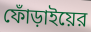
ফোঁড়াইয়ের